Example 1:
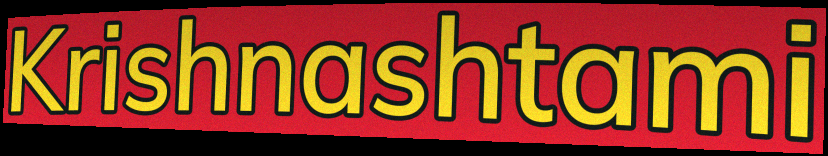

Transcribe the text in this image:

Krishnashtami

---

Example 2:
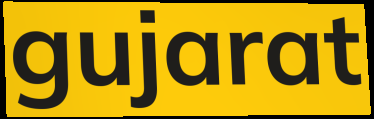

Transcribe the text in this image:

gujarat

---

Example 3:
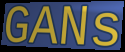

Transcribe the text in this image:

GANs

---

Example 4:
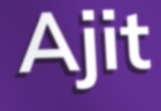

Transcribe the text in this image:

Ajit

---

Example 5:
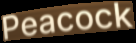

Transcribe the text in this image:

Peacock